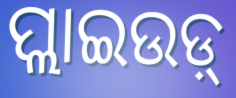
ପ୍ଲାଇଉଡ଼୍